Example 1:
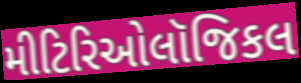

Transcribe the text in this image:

મીટિરિઓલૉજિકલ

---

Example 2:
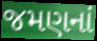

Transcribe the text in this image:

જમણનાં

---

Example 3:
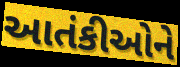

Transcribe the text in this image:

આતંકીઓને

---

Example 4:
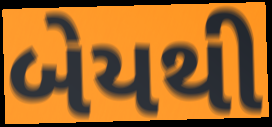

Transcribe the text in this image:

બેયથી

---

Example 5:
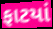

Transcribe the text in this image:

ફાટયાં